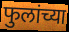
फुलांच्या